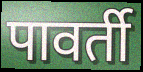
पावर्ती